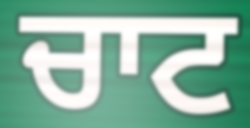
ਚਾਟ